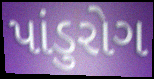
પાંડુરોગ